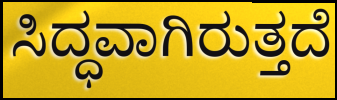
ಸಿದ್ಧವಾಗಿರುತ್ತದೆ